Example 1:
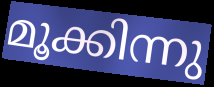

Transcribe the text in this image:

മൂക്കിന്നു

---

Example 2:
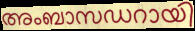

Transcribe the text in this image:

അംബാസഡറായി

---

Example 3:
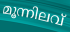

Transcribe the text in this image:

മൂന്നിലവ്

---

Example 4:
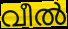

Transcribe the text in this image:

വീൽ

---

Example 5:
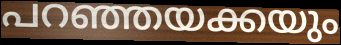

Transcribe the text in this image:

പറഞ്ഞയക്കയും